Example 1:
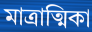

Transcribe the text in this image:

মাত্রাত্মিকা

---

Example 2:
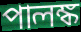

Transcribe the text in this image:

পালঙ্ক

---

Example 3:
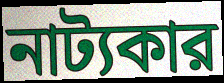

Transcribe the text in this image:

নাট্যকার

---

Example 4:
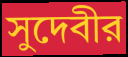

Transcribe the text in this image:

সুদেবীর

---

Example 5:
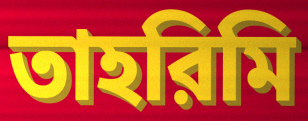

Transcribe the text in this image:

তাহরিমি